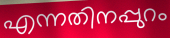
എന്നതിനപ്പുറം